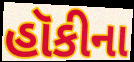
હૉકીના